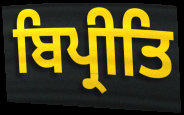
ਬਿਪ੍ਰੀਤਿ